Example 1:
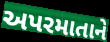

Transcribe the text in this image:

અપરમાતાને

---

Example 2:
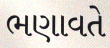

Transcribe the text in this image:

ભણાવતે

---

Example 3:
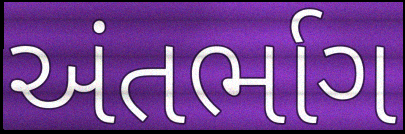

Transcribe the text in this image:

અંતર્ભાગ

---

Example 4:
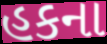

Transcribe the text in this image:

હકના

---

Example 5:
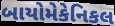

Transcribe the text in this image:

બાયોમેકેનિકલ